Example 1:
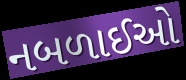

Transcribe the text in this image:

નબળાઈઓ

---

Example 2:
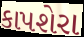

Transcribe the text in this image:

કાપશેરા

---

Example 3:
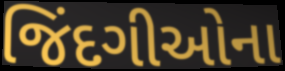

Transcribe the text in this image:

જિંદગીઓના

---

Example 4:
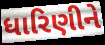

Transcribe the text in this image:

ધારિણીને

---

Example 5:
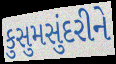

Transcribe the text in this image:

કુસુમસુંદરીને